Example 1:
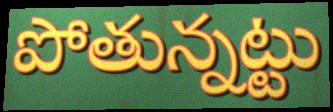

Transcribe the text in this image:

పోతున్నట్టు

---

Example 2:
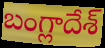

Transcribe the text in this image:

బంగ్లాదేశ్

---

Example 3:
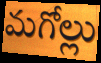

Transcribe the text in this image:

మగోల్లు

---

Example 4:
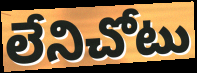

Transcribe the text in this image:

లేనిచోటు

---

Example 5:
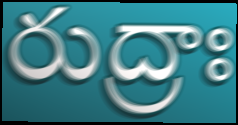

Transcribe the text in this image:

రుద్రాః